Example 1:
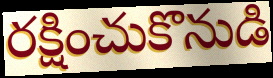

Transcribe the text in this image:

రక్షించుకొనుడి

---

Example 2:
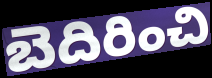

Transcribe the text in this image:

బెదిరించి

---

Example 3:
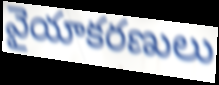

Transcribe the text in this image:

వైయాకరణులు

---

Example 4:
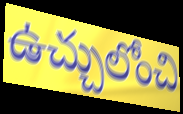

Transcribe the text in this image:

ఉచ్చులోంచి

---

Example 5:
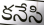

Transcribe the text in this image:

కనేసి